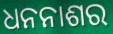
ଧନନାଶର